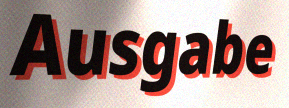
Ausgabe